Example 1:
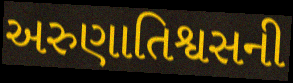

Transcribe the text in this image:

અરુણાતિશ્વસની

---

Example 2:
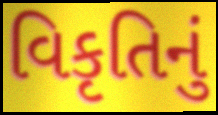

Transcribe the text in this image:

વિકૃતિનું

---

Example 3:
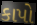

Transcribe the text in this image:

કાપો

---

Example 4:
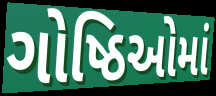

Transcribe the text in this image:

ગોષ્ઠિઓમાં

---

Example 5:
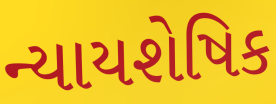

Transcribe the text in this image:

ન્યાયશેષિક